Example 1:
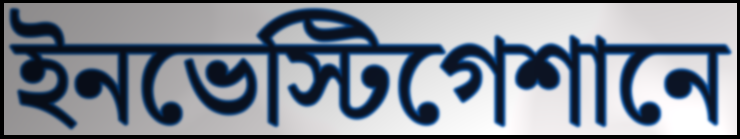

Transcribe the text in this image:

ইনভেস্টিগেশানে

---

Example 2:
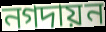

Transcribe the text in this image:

নগদায়ন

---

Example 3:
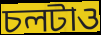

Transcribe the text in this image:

চলটাও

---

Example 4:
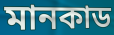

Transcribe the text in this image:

মানকাড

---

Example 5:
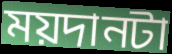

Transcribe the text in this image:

ময়দানটা